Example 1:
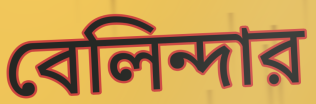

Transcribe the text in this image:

বেলিন্দার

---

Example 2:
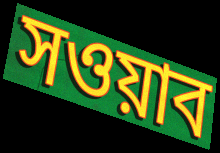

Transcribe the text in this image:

সওয়াব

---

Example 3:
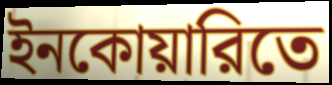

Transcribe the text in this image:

ইনকোয়ারিতে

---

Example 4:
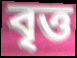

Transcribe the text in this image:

বৃত্ত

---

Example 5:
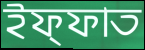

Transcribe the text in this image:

ইফ্ফাত